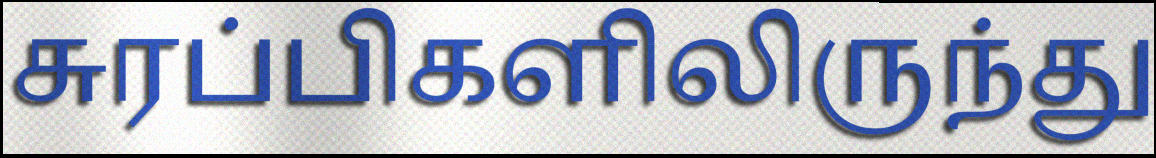
சுரப்பிகளிலிருந்து